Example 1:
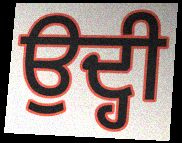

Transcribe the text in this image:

ਉਦ੍ਹੀ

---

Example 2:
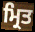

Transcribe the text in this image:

ਮ੍ਰਿਤ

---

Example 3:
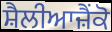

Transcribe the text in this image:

ਸ਼ੈਲੀਆਜ਼ੈਂਕੋ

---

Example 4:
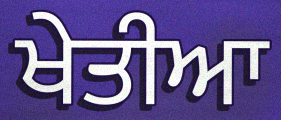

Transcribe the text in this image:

ਖੇਤੀਆ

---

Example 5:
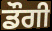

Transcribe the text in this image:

ਡੌਗੀ